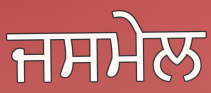
ਜਸਮੇਲ